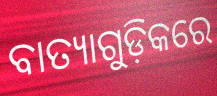
ବାତ୍ୟାଗୁଡ଼ିକରେ